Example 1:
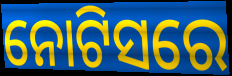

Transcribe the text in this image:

ନୋଟିସରେ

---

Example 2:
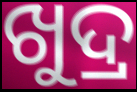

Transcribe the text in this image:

ଖୁଦ୍ର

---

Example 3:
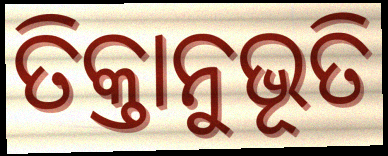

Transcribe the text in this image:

ତିକ୍ତାନୁଭୂତି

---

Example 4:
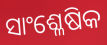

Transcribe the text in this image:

ସାଂଶ୍ଳେଷିକ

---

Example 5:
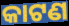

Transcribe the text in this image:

କାଟଣ